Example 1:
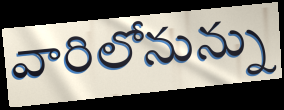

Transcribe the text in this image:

వారిలోనున్ను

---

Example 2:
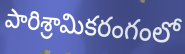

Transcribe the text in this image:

పారిశ్రామికరంగంలో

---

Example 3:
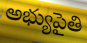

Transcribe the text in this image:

అభ్యుపైతి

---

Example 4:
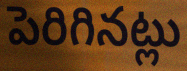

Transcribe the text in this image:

పెరిగినట్లు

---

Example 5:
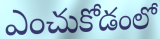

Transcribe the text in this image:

ఎంచుకోడంలో